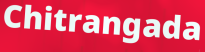
Chitrangada